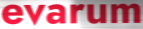
evarum